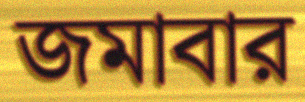
জমাবার